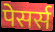
पेसर्स